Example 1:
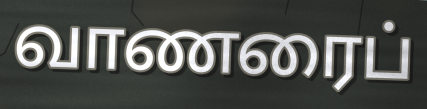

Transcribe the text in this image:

வாணரைப்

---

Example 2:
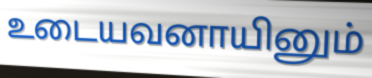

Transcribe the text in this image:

உடையவனாயினும்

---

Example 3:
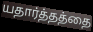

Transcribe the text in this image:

யதார்த்தத்தை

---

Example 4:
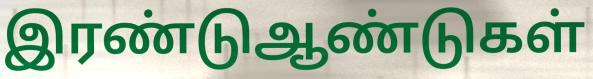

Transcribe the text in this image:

இரண்டுஆண்டுகள்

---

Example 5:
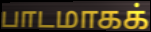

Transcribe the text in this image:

பாடமாகக்